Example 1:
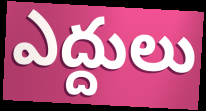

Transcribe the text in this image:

ఎద్దులు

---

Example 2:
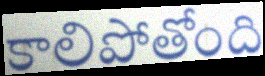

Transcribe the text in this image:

కాలిపోతోంది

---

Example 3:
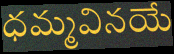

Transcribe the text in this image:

ధమ్మవినయే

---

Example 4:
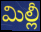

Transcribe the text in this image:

మిల్లీ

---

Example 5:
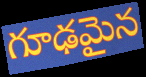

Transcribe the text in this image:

గూఢమైన